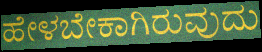
ಹೇಳಬೇಕಾಗಿರುವುದು